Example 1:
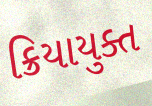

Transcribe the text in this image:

ક્રિયાયુક્ત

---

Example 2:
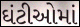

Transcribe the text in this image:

ઘંટીઓમાં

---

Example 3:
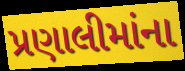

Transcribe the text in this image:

પ્રણાલીમાંના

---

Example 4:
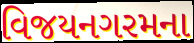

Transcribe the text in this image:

વિજયનગરમના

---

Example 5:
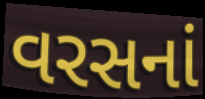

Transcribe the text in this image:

વરસનાં